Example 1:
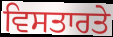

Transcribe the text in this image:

ਵਿਸਤਾਰਤੇ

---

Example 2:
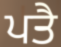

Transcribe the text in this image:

ਪਤੈ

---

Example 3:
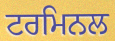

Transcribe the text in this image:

ਟਰਮਿਨਲ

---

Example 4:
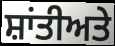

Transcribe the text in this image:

ਸ਼ਾਂਤੀਅਤੇ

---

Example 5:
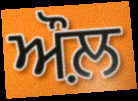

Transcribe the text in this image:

ਔਲ਼